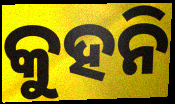
କୁହନି